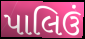
પાલિઉં